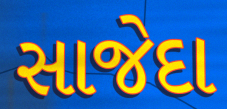
સાજેદા